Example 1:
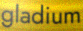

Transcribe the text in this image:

gladium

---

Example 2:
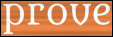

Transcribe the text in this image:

proue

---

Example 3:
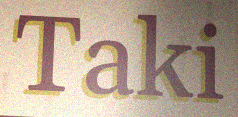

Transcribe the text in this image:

Taki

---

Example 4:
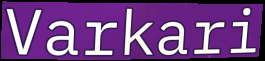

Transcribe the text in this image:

Varkari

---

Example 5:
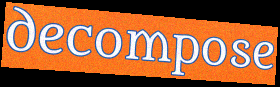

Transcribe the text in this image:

decompose